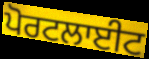
ਪੋਰਟਲਾਈਟ